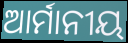
ଆର୍ମାନୀୟ